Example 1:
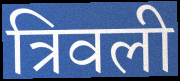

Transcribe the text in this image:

त्रिवली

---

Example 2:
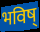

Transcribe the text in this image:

भविष्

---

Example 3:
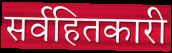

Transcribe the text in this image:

सर्वहितकारी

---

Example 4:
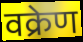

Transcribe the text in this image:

वक्रेण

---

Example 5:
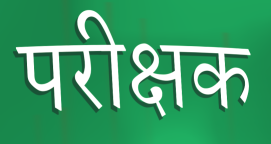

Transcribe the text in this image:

परीक्षक